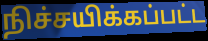
நிச்சயிக்கப்பட்ட